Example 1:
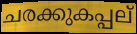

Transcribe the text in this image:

ചരക്കുകപ്പല്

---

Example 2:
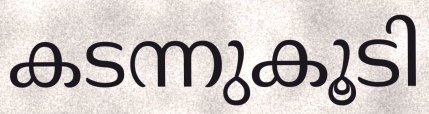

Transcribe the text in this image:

കടന്നുകൂടി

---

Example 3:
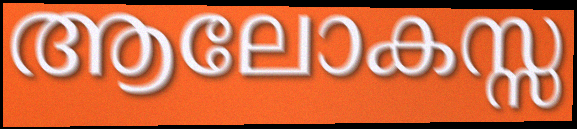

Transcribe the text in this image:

ആലോകസ്സ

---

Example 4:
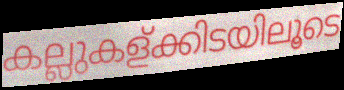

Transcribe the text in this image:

കല്ലുകള്ക്കിടയിലൂടെ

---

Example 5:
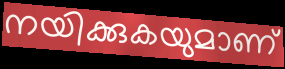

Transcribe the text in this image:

നയിക്കുകയുമാണ്